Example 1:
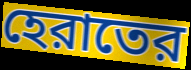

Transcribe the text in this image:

হেরাতের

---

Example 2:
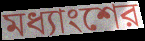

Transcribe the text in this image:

মধ্যাংশের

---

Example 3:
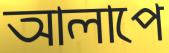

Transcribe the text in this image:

আলাপে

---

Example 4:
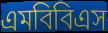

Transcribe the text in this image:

এমবিবিএস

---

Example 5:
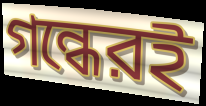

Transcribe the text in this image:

গন্ধেরই